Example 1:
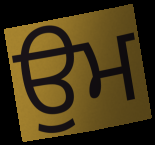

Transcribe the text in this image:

ਉਮ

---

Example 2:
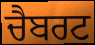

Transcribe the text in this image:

ਚੈਬਰਟ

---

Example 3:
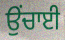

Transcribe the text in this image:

ਉਂਚਾਈ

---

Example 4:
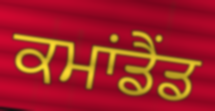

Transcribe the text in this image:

ਕਮਾਂਡੈਂਡ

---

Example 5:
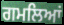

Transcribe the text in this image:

ਗਮਲਿਆਂ